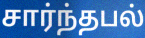
சார்ந்தபல்